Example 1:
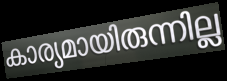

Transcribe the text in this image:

കാര്യമായിരുന്നില്ല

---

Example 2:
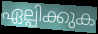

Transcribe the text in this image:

ഏല്പിക്കുക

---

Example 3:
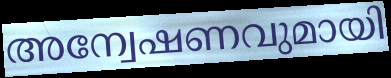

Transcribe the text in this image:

അന്വേഷണവുമായി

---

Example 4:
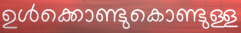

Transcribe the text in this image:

ഉൾക്കൊണ്ടുകൊണ്ടുള്ള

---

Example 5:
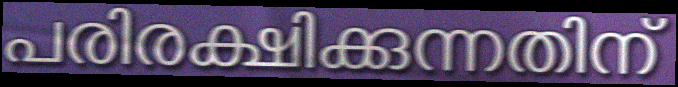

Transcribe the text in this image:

പരിരക്ഷിക്കുന്നതിന്